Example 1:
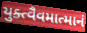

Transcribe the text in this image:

યુક્ત્વૈવમાત્માનં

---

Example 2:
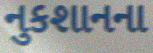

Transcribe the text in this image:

નુકશાનના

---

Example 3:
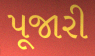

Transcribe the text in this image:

પૂજારી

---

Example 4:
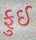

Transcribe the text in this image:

ફુઈ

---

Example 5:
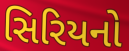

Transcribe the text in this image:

સિરિયનો